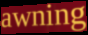
awning